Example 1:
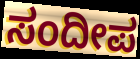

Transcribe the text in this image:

ಸಂದೀಪ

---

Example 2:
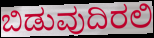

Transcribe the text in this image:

ಬಿಡುವುದಿರಲಿ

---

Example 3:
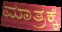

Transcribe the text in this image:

ಮಾತ್ರಕ್ಕೆ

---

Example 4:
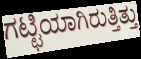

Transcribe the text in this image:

ಗಟ್ಟಿಯಾಗಿರುತ್ತಿತ್ತು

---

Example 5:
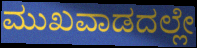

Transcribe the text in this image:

ಮುಖವಾಡದಲ್ಲೇ